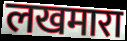
लखमारा